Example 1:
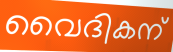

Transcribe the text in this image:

വൈദികന്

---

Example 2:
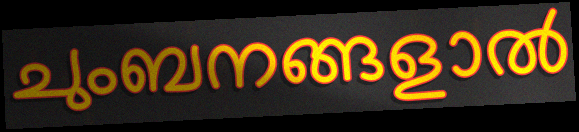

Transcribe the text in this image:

ചുംബനങ്ങളാൽ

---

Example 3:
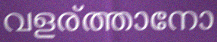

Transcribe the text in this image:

വളര്ത്താനോ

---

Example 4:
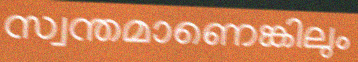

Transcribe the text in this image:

സ്വന്തമാണെങ്കിലും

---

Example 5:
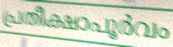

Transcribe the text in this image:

പ്രതീക്ഷാപൂർവം